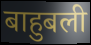
बाहुबली